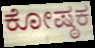
ಕೋಷ್ಠಕ